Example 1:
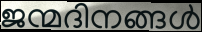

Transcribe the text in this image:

ജന്മദിനങ്ങൾ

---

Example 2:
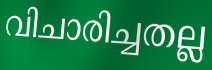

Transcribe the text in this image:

വിചാരിച്ചതല്ല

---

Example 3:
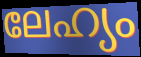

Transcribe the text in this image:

ലേഹ്യം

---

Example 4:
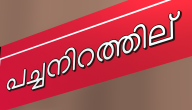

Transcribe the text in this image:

പച്ചനിറത്തില്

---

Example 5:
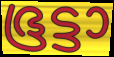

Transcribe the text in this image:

ഭൂട്ടാ